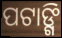
ପଟାଙ୍ଗି